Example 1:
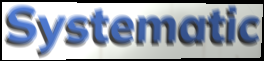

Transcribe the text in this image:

Systematic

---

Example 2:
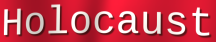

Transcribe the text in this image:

Holocaust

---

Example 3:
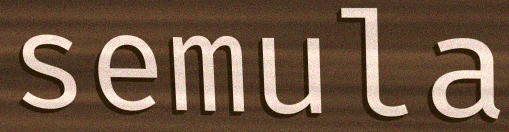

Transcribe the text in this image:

semula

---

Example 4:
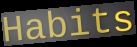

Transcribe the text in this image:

Habits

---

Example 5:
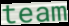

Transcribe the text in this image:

team